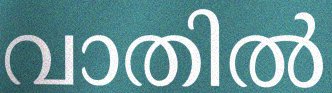
വാതിൽ